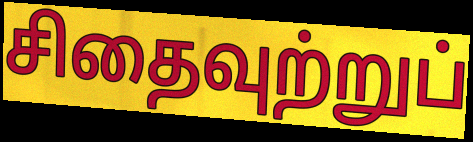
சிதைவுற்றுப்